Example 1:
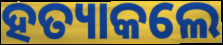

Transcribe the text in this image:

ହତ୍ୟାକଲେ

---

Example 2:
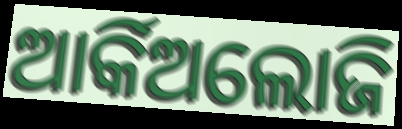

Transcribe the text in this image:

ଆର୍କିଅଲୋଜି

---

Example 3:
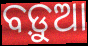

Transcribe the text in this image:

ବଡ଼ୁଆ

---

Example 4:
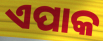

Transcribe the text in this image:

ଏପାକ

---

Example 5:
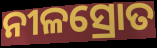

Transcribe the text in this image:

ନୀଳସ୍ରୋତ